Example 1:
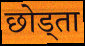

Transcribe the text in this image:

छोड्ता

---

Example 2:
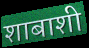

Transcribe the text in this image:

शाबाशी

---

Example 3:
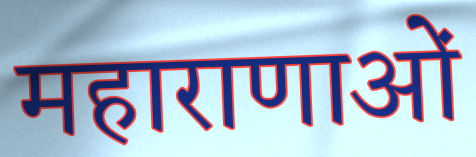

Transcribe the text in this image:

महाराणाओं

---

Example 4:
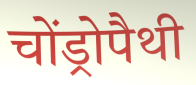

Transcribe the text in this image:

चोंड्रोपैथी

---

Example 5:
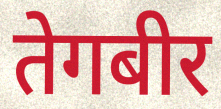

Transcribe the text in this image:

तेगबीर